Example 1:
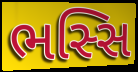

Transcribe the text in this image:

ભસ્સિ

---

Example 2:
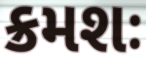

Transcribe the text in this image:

ક્રમશઃ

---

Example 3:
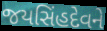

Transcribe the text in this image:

જયસિંહદેવને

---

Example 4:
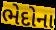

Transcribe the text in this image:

ભેદોના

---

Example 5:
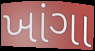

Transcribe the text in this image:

ખાંગા